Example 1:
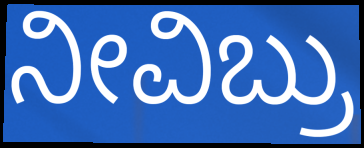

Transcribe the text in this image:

ನೀವಿಬ್ರು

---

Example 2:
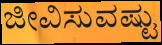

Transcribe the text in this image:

ಜೀವಿಸುವಷ್ಟು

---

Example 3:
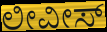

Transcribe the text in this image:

ಲೀವೀಸ್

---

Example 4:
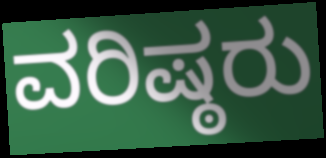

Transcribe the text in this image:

ವರಿಷ್ಠರು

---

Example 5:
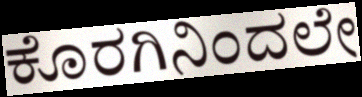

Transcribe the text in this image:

ಕೊರಗಿನಿಂದಲೇ